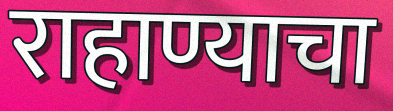
राहाण्याचा